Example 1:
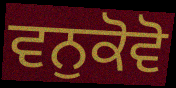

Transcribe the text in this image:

ਵਨੁਕੋਵੋ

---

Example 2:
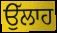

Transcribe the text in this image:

ਉੱਲਾਹ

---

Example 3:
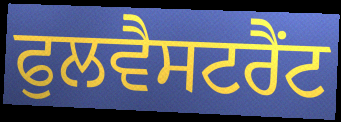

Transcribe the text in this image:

ਫੁਲਵੈਸਟਰੈਂਟ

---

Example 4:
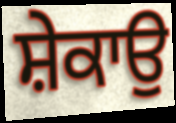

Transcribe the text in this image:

ਸ਼ੇਕਾਉ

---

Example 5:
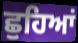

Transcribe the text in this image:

ਛੁਹਿਆਂ